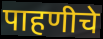
पाहणीचे